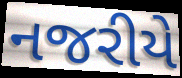
નજરીયે